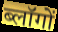
ब्‍लॉगों